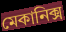
মেকানিক্স